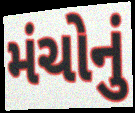
મંચોનું